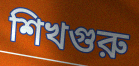
শিখগুরু